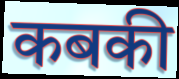
कबकी